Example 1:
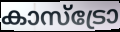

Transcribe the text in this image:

കാസ്ട്രോ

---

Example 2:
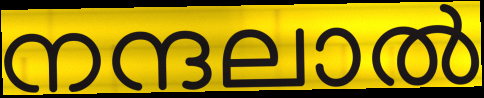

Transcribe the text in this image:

നന്ദലാൽ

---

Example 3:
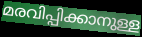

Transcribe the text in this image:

മരവിപ്പിക്കാനുള്ള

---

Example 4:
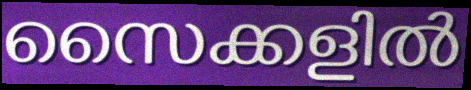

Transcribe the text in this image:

സൈക്കളിൽ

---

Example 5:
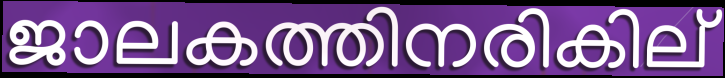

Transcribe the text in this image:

ജാലകത്തിനരികില്